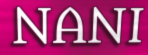
NANI